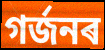
গৰ্জনৰ